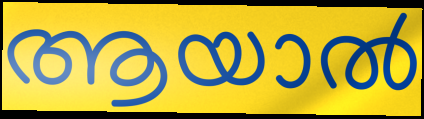
ആയാൽ